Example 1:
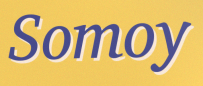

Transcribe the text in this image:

Somoy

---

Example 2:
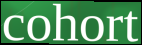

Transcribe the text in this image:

cohort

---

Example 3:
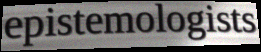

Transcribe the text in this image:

epistemologists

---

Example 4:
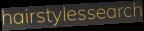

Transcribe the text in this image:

hairstylessearch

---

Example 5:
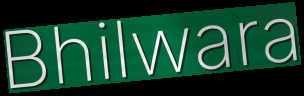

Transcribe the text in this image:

Bhilwara